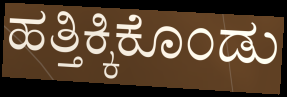
ಹತ್ತಿಕ್ಕಿಕೊಂಡು